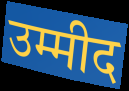
उम्‍मीद